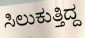
ಸಿಲುಕುತ್ತಿದ್ದ